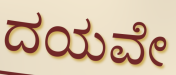
ದಯವೇ